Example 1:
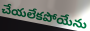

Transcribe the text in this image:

చేయలేకపోయేను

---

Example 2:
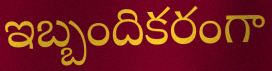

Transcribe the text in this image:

ఇబ్బందికరంగా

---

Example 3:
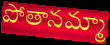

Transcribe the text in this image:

పోతానమ్మా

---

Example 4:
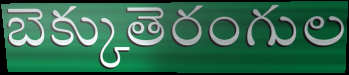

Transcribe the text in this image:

బెక్కుతెరంగుల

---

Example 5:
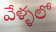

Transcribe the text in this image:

వేళ్ళలో